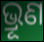
ଭ୍ରୂଣ